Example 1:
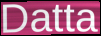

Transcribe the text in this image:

Datta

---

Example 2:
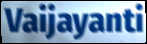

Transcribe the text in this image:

Vaijayanti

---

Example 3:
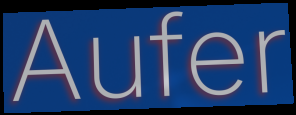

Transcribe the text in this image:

Aufer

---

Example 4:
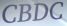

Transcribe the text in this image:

CBDC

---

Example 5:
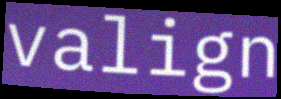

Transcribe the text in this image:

valign